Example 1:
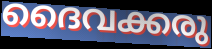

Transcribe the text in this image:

ദൈവക്കരു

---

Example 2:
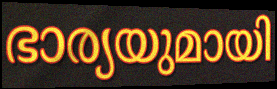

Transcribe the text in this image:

ഭാര്യയുമായി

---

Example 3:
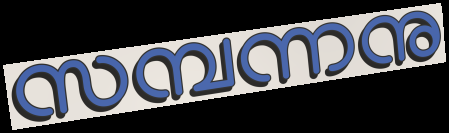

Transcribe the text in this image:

സമ്പന്നനു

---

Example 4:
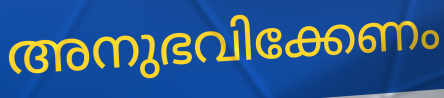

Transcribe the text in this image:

അനുഭവിക്കേണം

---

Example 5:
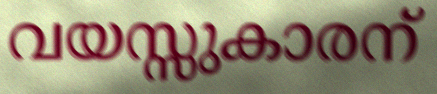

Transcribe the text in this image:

വയസ്സുകാരന്